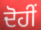
ਦੋਹੀਂ